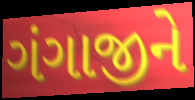
ગંગાજીને